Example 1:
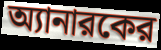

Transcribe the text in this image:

অ্যানারকের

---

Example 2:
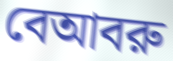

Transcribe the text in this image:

বেআবরু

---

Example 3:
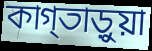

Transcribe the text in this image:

কাগ্‌তাড়ুয়া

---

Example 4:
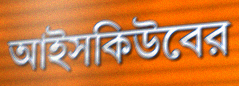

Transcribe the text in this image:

আইসকিউবের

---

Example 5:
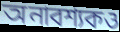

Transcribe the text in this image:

অনাবশ্যকও